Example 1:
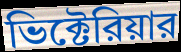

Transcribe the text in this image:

ভিক্টেরিয়ার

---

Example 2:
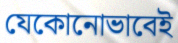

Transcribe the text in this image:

যেকোনোভাবেই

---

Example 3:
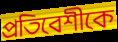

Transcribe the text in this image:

প্রতিবেশীকে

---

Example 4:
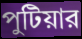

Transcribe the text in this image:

পুটিয়ার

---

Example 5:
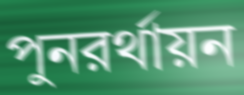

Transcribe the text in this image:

পুনরর্থায়ন